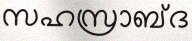
സഹസ്രാബ്ദ